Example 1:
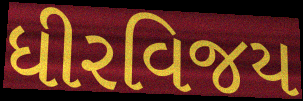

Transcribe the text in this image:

ધીરવિજય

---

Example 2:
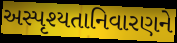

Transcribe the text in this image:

અસ્પૃશ્યતાનિવારણને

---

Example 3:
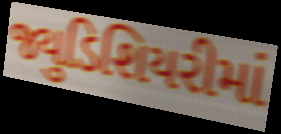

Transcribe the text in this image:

જ્યુડિશિયરીમાં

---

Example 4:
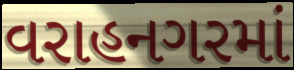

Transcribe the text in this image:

વરાહનગરમાં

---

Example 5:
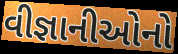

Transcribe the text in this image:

વીજ્ઞાનીઓનો